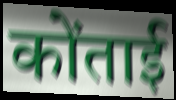
कोंताई